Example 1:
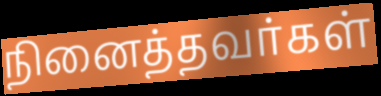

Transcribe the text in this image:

நினைத்தவர்கள்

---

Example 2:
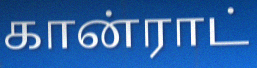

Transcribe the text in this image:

கான்ராட்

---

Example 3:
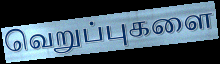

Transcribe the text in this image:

வெறுப்புகளை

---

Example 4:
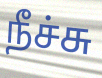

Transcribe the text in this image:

நீச்சு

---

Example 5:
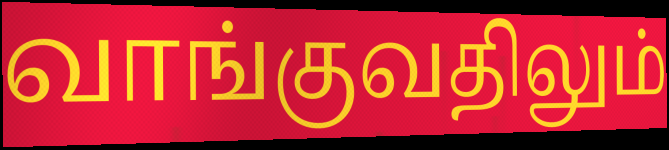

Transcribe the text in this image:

வாங்குவதிலும்